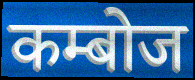
कम्बोज